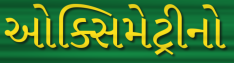
ઓક્સિમેટ્રીનો